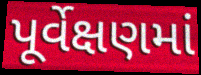
પૂર્વેક્ષણમાં